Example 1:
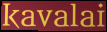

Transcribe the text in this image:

kavalai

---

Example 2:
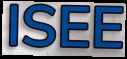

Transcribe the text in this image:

ISEE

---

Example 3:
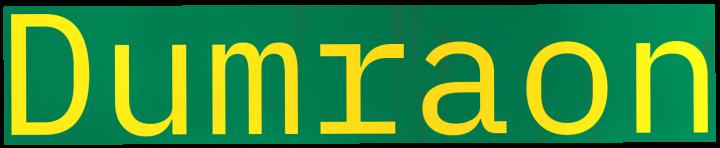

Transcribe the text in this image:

Dumraon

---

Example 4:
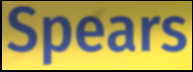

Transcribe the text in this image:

Spears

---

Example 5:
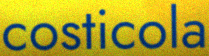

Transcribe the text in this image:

costicola